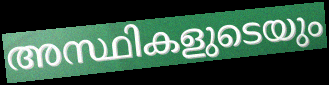
അസ്ഥികളുടെയും